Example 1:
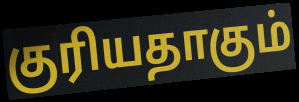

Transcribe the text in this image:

குரியதாகும்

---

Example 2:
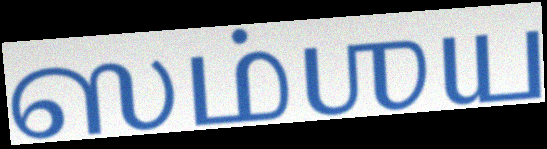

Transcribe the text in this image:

ஸம்ஶய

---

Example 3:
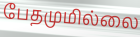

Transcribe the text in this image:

பேதமுமில்லை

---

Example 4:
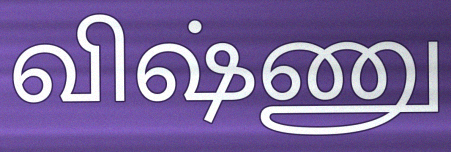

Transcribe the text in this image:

விஷ்ணு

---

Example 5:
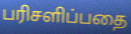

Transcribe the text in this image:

பரிசளிப்பதை